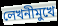
লেখনীমুখে